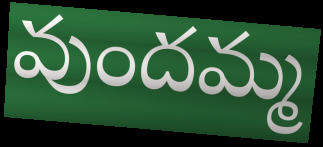
వుందమ్మ